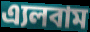
এ্যলবাম